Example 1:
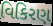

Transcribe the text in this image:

વિકિરણ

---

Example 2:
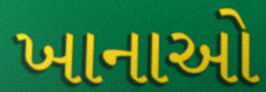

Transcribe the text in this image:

ખાનાઓ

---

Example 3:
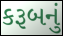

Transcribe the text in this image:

કરૂબનું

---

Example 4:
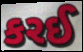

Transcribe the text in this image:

કરઈ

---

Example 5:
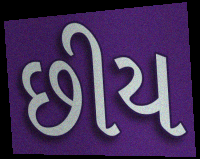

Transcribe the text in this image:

છીય